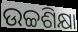
ଉଚ୍ଚଶିକ୍ଷା